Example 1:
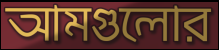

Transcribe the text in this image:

আমগুলোর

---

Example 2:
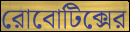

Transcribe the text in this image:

রোবোটিক্সের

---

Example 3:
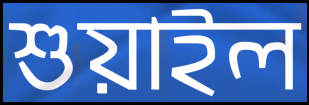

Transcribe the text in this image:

শুয়াইল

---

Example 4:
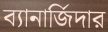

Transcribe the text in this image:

ব্যানার্জিদার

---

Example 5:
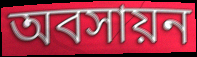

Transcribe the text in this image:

অবসায়ন